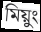
মিয়ুং